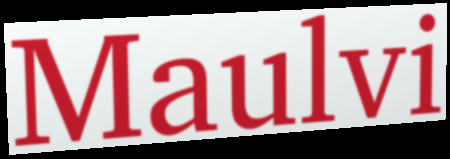
Maulvi